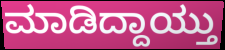
ಮಾಡಿದ್ದಾಯ್ತು